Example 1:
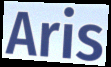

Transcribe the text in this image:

Aris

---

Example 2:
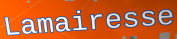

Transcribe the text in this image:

Lamairesse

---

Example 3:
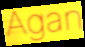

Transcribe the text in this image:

Agan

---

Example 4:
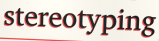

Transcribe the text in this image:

stereotyping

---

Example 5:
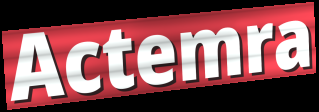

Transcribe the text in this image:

Actemra